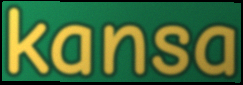
kansa